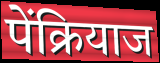
पेंक्रियाज